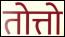
तोत्तो